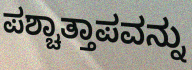
ಪಶ್ಚಾತ್ತಾಪವನ್ನು